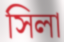
সিলা